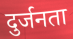
दुर्जनता